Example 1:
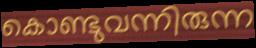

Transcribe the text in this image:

കൊണ്ടുവന്നിരുന്ന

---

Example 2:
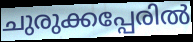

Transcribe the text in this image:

ചുരുക്കപ്പേരിൽ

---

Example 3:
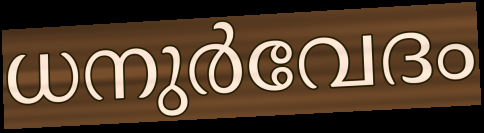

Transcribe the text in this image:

ധനുർവേദം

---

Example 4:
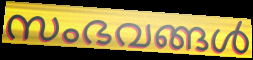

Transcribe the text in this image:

സംഭവങ്ങൾ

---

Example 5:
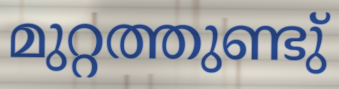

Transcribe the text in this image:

മുറ്റത്തുണ്ടു്